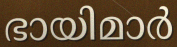
ഭായിമാർ